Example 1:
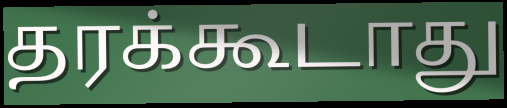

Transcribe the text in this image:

தரக்கூடாது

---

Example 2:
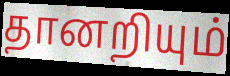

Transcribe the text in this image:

தானறியும்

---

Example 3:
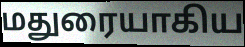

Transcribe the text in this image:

மதுரையாகிய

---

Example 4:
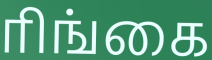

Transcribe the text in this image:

ரிங்கை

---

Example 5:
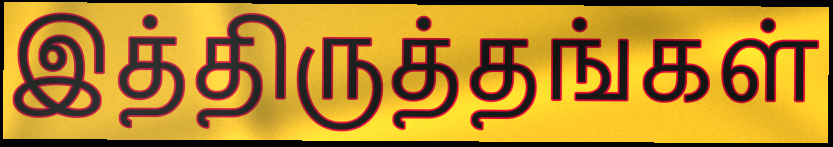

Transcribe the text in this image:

இத்திருத்தங்கள்